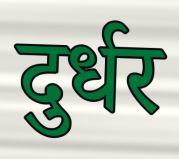
दुर्धर